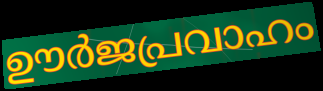
ഊർജപ്രവാഹം